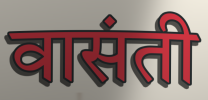
वासंती